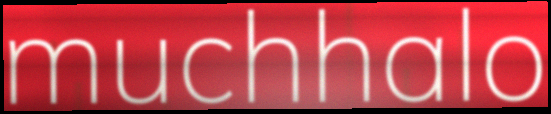
muchhalo